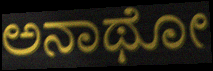
ಅನಾಥೋ